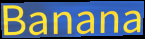
Banana